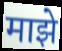
माझे